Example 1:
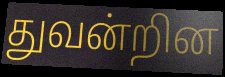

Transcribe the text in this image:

துவன்றின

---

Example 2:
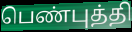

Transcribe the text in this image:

பெண்புத்தி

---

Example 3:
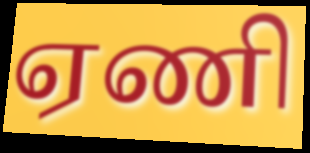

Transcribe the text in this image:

ஏணி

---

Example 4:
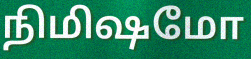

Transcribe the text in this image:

நிமிஷமோ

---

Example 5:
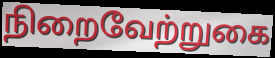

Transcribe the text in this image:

நிறைவேற்றுகை